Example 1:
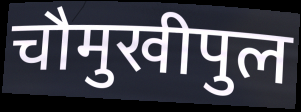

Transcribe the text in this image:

चौमुखीपुल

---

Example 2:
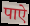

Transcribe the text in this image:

पाऐ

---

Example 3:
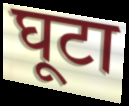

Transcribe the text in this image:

घूटा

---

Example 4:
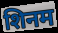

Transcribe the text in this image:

शिनम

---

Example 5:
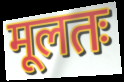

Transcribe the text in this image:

मूलतः